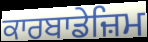
ਕਾਰਬਾਡੇਜ਼ਿਮ